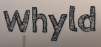
Whyld